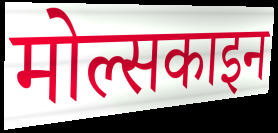
मोल्सकाइन